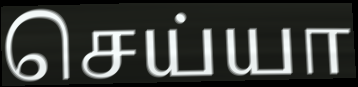
செய்யா